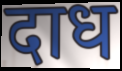
दाध